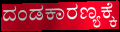
ದಂಡಕಾರಣ್ಯಕ್ಕೆ